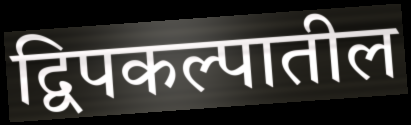
द्विपकल्पातील